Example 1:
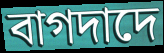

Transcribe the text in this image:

বাগদাদে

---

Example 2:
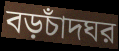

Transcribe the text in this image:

বড়চাঁদঘর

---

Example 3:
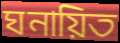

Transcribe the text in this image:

ঘনায়িত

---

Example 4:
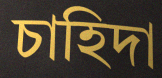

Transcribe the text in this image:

চাহিদা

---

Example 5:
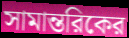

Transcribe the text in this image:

সামান্তরিকের